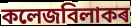
কলেজবিলাকৰ